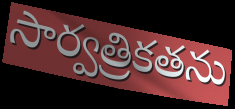
సార్వత్రికతను